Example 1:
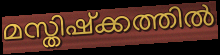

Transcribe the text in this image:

മസ്തിഷ്ക്കത്തിൽ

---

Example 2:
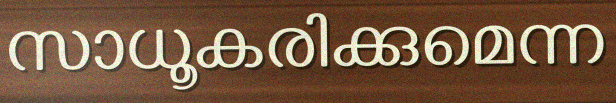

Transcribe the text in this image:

സാധൂകരിക്കുമെന്ന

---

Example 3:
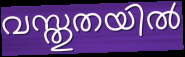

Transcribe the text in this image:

വസ്തുതയിൽ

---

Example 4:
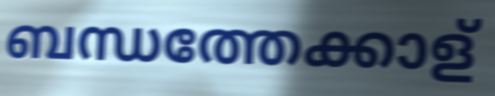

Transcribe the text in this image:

ബന്ധത്തേക്കാള്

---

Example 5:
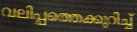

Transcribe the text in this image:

വലിപ്പത്തെക്കുറിച്ച്